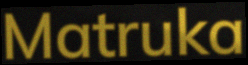
Matruka